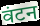
वंटन